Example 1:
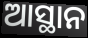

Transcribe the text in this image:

ଆସ୍ଥାନ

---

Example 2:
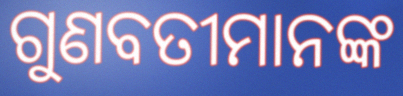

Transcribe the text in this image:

ଗୁଣବତୀମାନଙ୍କ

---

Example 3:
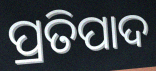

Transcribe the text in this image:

ପ୍ରତିପାଦ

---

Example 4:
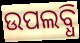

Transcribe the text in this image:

ଉପଲବ୍ଧି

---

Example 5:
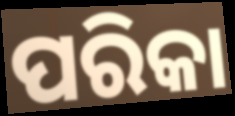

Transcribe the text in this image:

ପରିକା